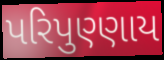
પરિપુણ્ણાય